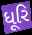
ધૂરિ